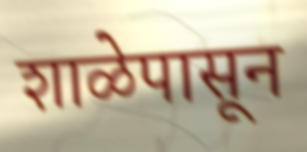
शाळेपासून